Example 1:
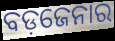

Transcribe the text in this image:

ବଡ଼ଜେନାର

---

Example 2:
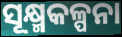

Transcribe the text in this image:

ସୂକ୍ଷ୍ମକଳ୍ପନା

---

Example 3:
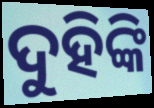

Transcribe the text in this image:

ଦୁହିଙ୍କି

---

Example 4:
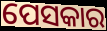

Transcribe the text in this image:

ପେସକାର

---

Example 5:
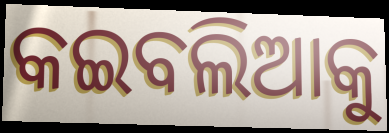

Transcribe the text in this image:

କଇବଲିଆକୁ